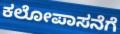
ಕಲೋಪಾಸನೆಗೆ